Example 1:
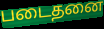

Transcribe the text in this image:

படைதனை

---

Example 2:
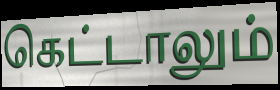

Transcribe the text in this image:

கெட்டாலும்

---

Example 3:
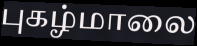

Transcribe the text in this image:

புகழ்மாலை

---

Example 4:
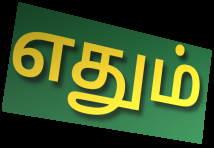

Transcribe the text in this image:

எதும்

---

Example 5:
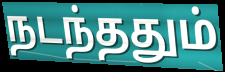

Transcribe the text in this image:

நடந்ததும்